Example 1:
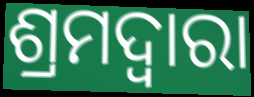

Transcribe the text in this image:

ଶ୍ରମଦ୍ଵାରା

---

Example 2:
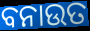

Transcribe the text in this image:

ବନାଉତ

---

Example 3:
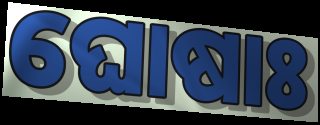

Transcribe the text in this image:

ଘୋଷାଃ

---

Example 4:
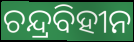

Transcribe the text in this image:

ଚନ୍ଦ୍ରବିହୀନ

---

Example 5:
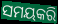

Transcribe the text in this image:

ସମୟକରି